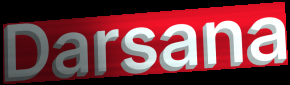
Darsana